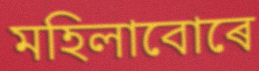
মহিলাবোৰে